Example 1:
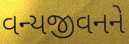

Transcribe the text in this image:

વન્યજીવનને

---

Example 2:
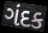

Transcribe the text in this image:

ગંદક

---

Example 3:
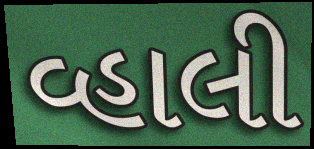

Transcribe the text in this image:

વ્હાલી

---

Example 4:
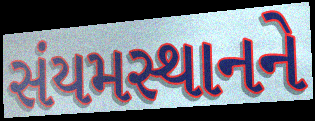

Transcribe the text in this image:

સંયમસ્થાનને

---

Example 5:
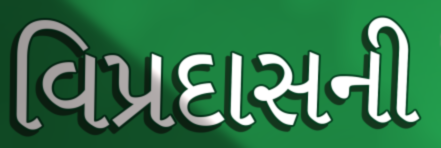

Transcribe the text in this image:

વિપ્રદાસની